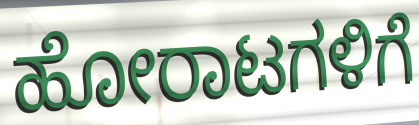
ಹೋರಾಟಗಳಿಗೆ